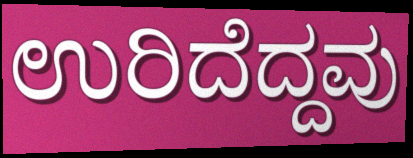
ಉರಿದೆದ್ದವು